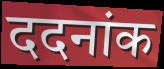
ददनांक